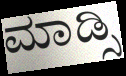
ಮಾಡ್ಸಿ